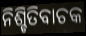
ନିଶ୍ଚିତିବାଚକ